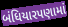
બંધિયારપણામાં